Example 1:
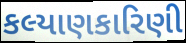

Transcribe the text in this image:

કલ્યાણકારિણી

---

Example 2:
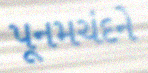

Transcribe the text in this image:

પૂનમચંદને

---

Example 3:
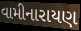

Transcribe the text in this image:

વામીનારાયણ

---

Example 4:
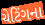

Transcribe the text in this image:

ચેટિંગના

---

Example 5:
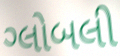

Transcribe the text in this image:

ગ્લોબલી